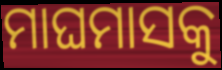
ମାଘମାସକୁ